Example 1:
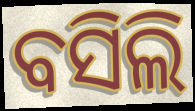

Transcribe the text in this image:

ବସିଲି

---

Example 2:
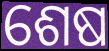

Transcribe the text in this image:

ଶେଷ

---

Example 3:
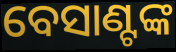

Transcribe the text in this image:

ବେସାଣ୍ଟଙ୍କ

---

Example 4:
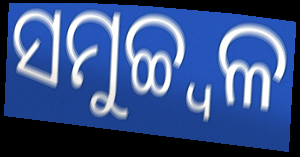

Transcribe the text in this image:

ସମୁଚ୍ଚ୍ୱଳ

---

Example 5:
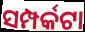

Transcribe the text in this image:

ସମ୍ପର୍କଟା